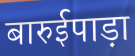
बारुईपाड़ा